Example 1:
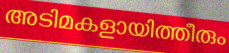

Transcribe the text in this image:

അടിമകളായിത്തീരും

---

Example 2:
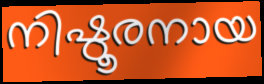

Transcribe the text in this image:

നിഷ്ഠൂരനായ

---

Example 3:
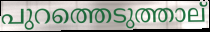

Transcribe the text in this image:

പുറത്തെടുത്താല്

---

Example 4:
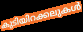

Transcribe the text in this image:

കുടിയിറക്കലുകൾ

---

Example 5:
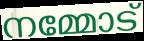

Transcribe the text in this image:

നമ്മോട്